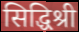
सिद्धिश्री